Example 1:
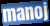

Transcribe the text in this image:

manoj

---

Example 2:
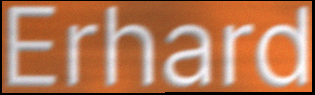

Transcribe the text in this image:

Erhard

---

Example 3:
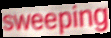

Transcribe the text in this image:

sweeping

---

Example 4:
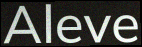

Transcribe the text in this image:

Aleve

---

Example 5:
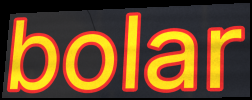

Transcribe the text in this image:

bolar